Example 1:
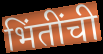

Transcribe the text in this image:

भिंतींची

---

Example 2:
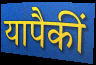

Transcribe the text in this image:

यापैकीं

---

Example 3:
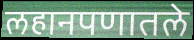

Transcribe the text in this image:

लहानपणातले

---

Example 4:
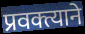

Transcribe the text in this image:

प्रवक्‍त्याने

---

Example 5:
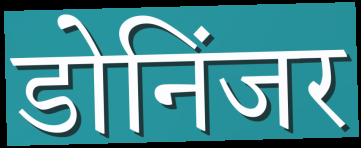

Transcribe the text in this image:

डोनिंजर